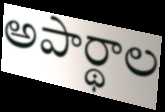
అపార్థాల